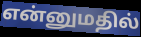
என்னுமதில்